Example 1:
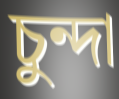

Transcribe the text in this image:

চুন্দা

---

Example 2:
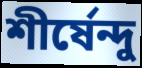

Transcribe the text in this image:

শীর্ষেন্দু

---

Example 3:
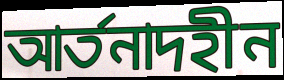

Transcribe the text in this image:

আর্তনাদহীন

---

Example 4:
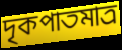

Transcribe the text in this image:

দৃকপাতমাত্র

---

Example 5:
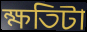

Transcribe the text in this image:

ক্ষতিটা